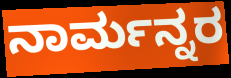
ನಾರ್ಮನ್ನರ